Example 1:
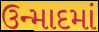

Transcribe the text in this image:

ઉન્માદમાં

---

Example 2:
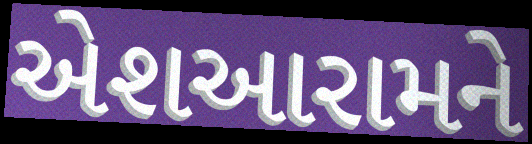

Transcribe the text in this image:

એશઆરામને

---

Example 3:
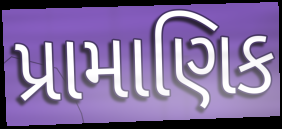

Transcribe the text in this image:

પ્રામાણિક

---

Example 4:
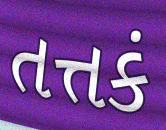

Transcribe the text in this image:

તત્તકં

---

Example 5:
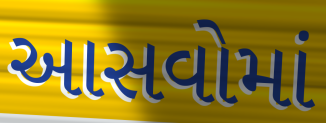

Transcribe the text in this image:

આસવોમાં